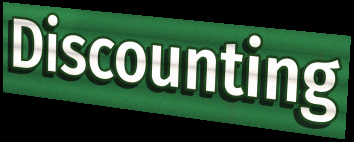
Discounting